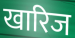
खारिज